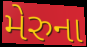
મેરુના